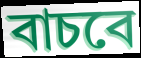
বাচবে